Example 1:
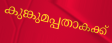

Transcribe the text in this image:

കുങ്കുമപ്പതാകക്ക്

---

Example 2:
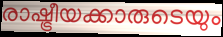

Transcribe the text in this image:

രാഷ്ട്രീയക്കാരുടെയും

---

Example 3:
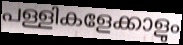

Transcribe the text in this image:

പള്ളികളേക്കാളും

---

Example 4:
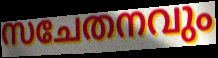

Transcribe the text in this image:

സചേതനവും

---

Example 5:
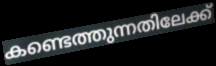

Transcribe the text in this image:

കണ്ടെത്തുന്നതിലേക്ക്